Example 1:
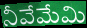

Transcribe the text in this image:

నీవేమేమి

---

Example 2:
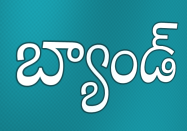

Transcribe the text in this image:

బ్యాండ్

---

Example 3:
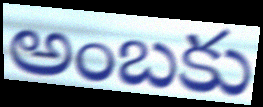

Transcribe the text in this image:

అంబకు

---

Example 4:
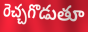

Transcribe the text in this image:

రెచ్చగొడుతూ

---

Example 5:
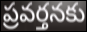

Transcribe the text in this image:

ప్రవర్తనకు